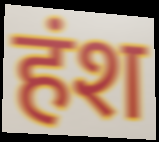
हंश